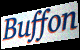
Buffon